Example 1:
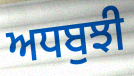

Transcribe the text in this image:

ਅਧਬੁਝੀ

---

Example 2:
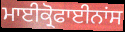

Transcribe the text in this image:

ਮਾਈਕ੍ਰੋਫਾਈਨਾਂਸ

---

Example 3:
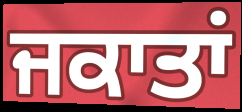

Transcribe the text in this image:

ਜਕਾਤਾਂ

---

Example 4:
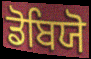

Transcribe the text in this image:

ਡੋਬਿਯੋ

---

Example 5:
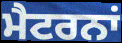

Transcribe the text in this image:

ਮੈਟਰਨਾਂ